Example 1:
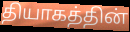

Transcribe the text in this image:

தியாகத்தின்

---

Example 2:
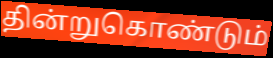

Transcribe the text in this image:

தின்றுகொண்டும்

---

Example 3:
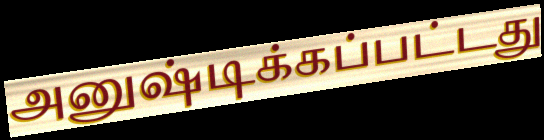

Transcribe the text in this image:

அனுஷ்டிக்கப்பட்டது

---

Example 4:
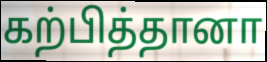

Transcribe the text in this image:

கற்பித்தானா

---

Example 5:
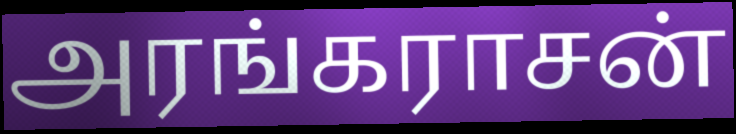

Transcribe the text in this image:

அரங்கராசன்